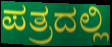
ಪತ್ರದಲ್ಲಿ